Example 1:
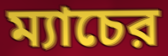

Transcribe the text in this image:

ম্যাচের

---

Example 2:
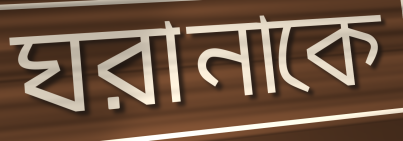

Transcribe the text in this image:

ঘরানাকে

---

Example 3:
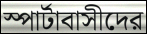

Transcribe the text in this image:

স্পার্টাবাসীদের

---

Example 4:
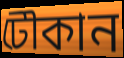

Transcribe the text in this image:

টৌকান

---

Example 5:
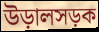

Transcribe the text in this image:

উড়ালসড়ক